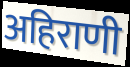
अहिराणी